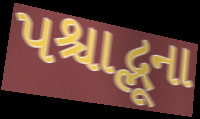
પશ્ચાદ્ભૂના